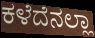
ಕಳೆದೆನಲ್ಲಾ